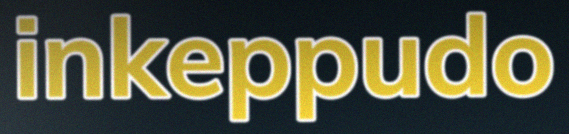
inkeppudo